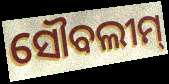
ସୌବଲୀମ୍